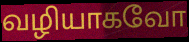
வழியாகவோ